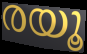
രയൂ